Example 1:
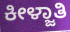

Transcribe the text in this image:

ಕೀಳ್ಜಾತಿ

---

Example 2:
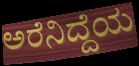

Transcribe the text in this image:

ಅರೆನಿದ್ದೆಯ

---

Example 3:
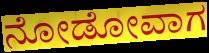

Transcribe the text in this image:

ನೋಡೋವಾಗ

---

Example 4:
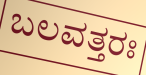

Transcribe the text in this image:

ಬಲವತ್ತರಃ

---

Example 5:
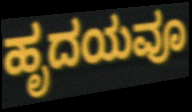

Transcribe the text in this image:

ಹೃದಯವೂ